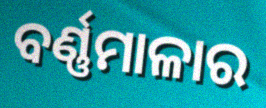
ବର୍ଣ୍ଣମାଳାର